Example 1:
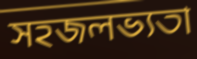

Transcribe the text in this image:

সহজলভ্যতা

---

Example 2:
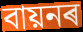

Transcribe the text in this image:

বায়নৰ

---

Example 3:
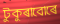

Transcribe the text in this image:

টুকুৰাবোৰে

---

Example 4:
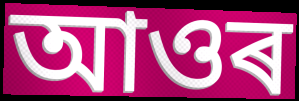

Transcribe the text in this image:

আওৰ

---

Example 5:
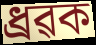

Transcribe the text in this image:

ধ্ৰৱক